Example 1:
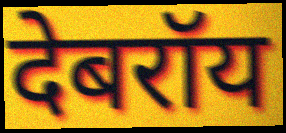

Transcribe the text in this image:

देबरॉय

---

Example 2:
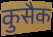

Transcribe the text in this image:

कुसैक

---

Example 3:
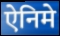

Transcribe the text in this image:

ऐनिमे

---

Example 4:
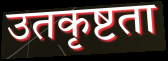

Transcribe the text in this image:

उतकृष्टता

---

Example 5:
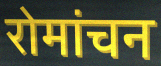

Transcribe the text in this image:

रोमांचन